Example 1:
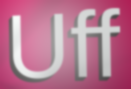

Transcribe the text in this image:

Uff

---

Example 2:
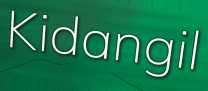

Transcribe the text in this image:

Kidangil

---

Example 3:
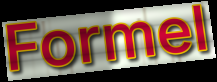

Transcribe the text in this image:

Formel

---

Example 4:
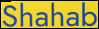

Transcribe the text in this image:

Shahab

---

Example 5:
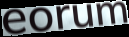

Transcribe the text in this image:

eorum